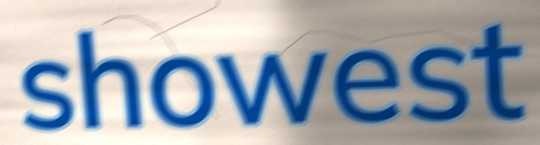
showest